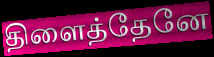
திளைத்தேனே